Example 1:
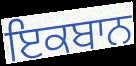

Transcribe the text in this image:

ਇਕਬਾਨ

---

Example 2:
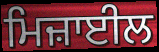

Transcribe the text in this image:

ਮਿਜ਼ਾਈਲ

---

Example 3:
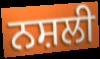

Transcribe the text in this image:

ਨਸ਼ਲੀ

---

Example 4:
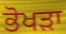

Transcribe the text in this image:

ਭੋਖੜਾ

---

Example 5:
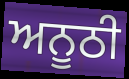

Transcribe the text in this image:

ਅਨੂਠੀ